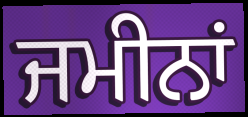
ਜਮੀਨਾਂ